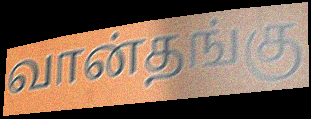
வான்தங்கு